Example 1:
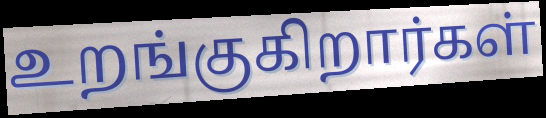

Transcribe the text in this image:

உறங்குகிறார்கள்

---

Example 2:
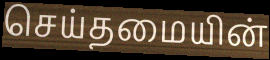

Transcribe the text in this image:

செய்தமையின்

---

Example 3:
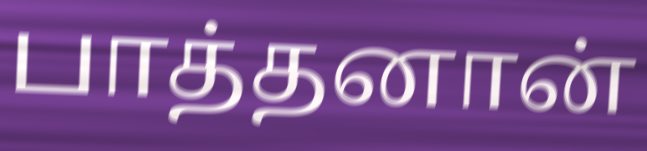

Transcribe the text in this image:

பாத்தனான்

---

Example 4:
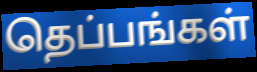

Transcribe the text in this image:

தெப்பங்கள்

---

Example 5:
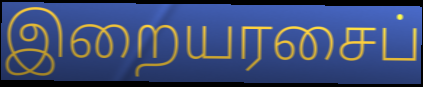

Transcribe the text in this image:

இறையரசைப்